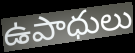
ఉపాధులు